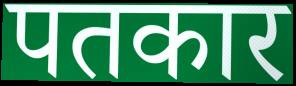
पतकार